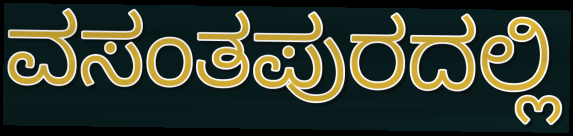
ವಸಂತಪುರದಲ್ಲಿ